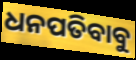
ଧନପତିବାବୁ